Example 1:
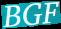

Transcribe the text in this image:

BGF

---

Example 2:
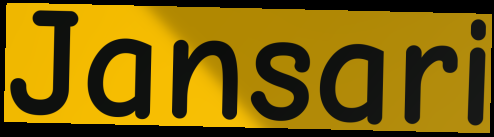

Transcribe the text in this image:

Jansari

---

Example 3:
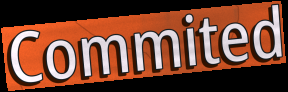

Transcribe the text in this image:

Commited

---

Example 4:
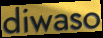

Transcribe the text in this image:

diwaso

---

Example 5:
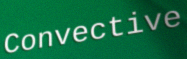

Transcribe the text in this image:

Convective